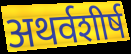
अथर्वशीर्ष